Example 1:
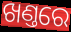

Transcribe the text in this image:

ଖଣ୍ତରେ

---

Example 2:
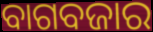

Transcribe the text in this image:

ବାଗବଜାର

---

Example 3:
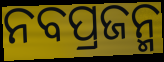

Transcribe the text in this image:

ନବପ୍ରଜନ୍ମ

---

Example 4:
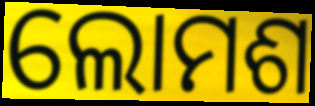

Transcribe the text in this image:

ଲୋମଶ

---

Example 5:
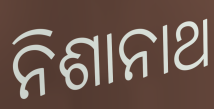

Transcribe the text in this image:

ନିଶାନାଥ